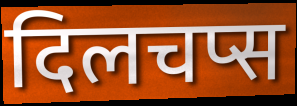
दिलचप्स